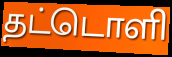
தட்டொளி